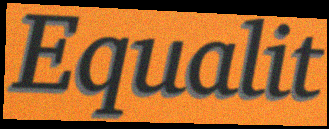
Equalit